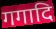
गगादि